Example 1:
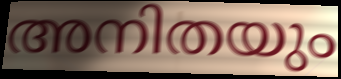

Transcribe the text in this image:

അനിതയും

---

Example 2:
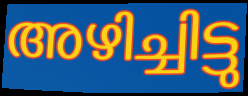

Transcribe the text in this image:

അഴിച്ചിട്ടു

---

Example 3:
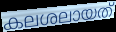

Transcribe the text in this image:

കലശലായത്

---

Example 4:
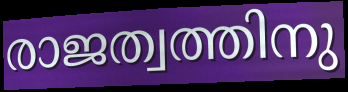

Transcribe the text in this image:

രാജത്വത്തിനു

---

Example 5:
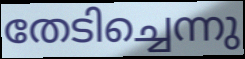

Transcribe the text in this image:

തേടിച്ചെന്നു